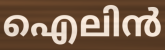
ഐലിൻ